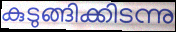
കുടുങ്ങിക്കിടന്നു